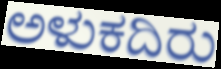
ಅಳುಕದಿರು